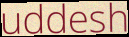
uddesh